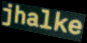
jhalke